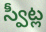
స్వీట్ల